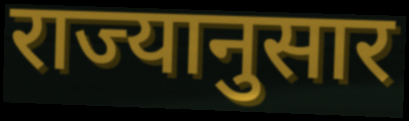
राज्यानुसार